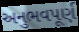
અનુભવપૂર્ણ